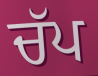
ਚੱਪ